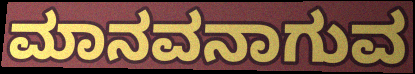
ಮಾನವನಾಗುವ